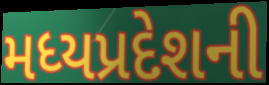
મધ્યપ્રદેશની